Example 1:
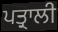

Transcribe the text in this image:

ਪਤ੍ਰਾਲੀ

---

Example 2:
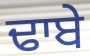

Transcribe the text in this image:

ਢਾਬੇ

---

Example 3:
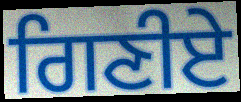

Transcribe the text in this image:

ਗਿਣੀਏ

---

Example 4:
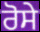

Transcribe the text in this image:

ਰੋਸੇ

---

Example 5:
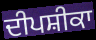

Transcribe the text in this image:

ਦੀਪਸ਼ੀਕਾ